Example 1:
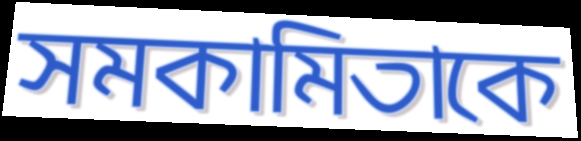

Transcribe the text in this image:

সমকামিতাকে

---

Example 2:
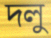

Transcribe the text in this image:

দলু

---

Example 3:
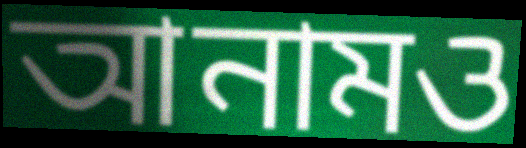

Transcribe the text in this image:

আনামও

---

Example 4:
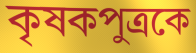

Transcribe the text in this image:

কৃষকপুত্রকে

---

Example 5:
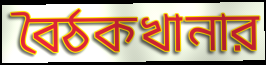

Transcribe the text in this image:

বৈঠকখানার